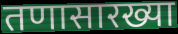
तणासारख्या